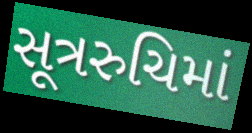
સૂત્રરુચિમાં